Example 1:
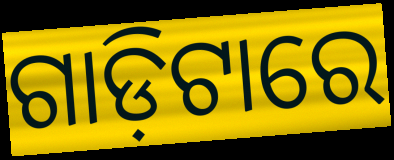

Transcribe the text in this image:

ଗାଡ଼ିଟାରେ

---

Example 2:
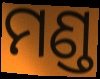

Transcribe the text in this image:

ମଣ୍ଡ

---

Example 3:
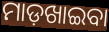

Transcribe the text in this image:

ମାଡ଼ଖାଇବା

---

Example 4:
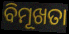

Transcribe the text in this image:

ବିମୂଖତା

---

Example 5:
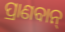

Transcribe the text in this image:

ପ୍ରାଣବାନ୍